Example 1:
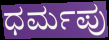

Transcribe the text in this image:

ಧರ್ಮಪು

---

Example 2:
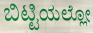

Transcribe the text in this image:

ಬಿಟ್ಟಿಯಲ್ಲೋ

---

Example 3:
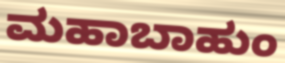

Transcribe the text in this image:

ಮಹಾಬಾಹುಂ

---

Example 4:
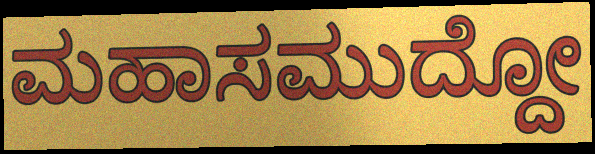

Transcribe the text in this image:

ಮಹಾಸಮುದ್ದೋ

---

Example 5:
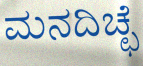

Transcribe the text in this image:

ಮನದಿಚ್ಛೆ